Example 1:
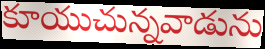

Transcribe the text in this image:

కూయుచున్నవాడును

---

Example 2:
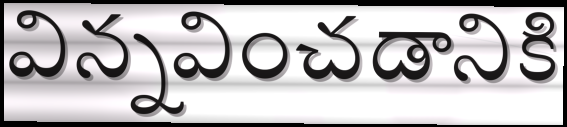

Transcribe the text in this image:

విన్నవించడానికి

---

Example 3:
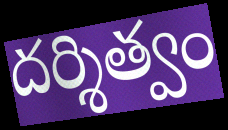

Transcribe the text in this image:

దర్శిత్వం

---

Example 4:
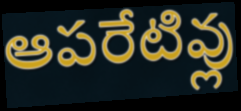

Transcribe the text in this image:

ఆపరేటివ్లు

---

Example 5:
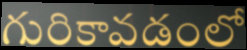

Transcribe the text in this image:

గురికావడంలో